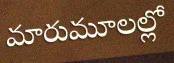
మారుమూలల్లో